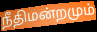
நீதிமன்றமும்